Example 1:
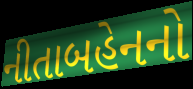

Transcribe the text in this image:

નીતાબહેનનો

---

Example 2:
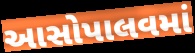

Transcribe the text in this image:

આસોપાલવમાં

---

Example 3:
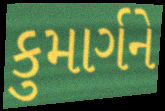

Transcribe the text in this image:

કુમાર્ગને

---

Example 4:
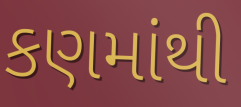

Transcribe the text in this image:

કણમાંથી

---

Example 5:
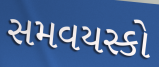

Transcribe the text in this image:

સમવયસ્કો